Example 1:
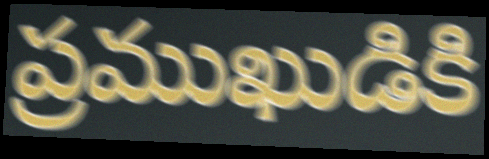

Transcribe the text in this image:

ప్రముఖుడికి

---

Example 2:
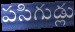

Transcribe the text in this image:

పసిగుడ్లు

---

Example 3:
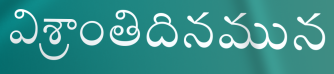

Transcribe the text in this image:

విశ్రాంతిదినమున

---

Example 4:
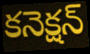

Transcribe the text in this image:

కనెక్షన్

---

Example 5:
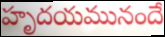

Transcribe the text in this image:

హృదయమునందే